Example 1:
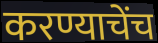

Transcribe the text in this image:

करण्याचेंच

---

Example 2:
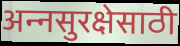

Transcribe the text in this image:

अन्नसुरक्षेसाठी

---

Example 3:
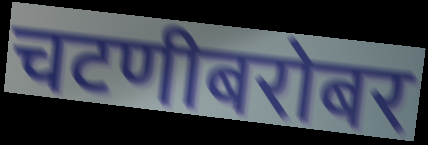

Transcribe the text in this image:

चटणीबरोबर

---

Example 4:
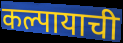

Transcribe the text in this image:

कल्पायाची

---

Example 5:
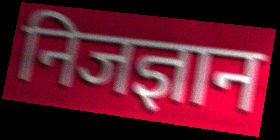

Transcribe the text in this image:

निजज्ञान